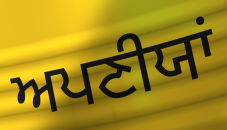
ਅਪਣੀਯਾਂ